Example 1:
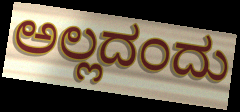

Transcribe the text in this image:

ಅಲ್ಲದಂದು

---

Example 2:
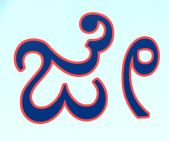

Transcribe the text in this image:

ಜೇ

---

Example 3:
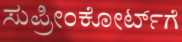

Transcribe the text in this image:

ಸುಪ್ರೀಂಕೋರ್ಟ್‌ಗೆ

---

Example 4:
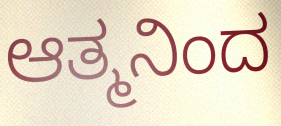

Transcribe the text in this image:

ಆತ್ಮನಿಂದ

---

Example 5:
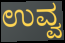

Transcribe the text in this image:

ಉವ್ವ